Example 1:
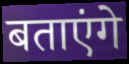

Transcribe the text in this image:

बताएंगे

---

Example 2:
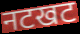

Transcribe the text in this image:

नटखट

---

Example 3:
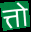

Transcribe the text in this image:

त्तो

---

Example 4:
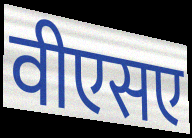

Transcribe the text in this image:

वीएसए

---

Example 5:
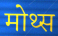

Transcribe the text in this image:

मोथ्स